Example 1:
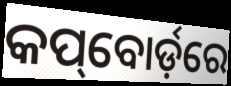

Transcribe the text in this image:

କପ୍‌ବୋର୍ଡ଼ରେ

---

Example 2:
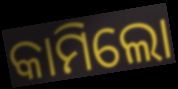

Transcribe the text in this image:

କାମିଲୋ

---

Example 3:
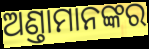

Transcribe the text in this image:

ଅଣ୍ତାମାନଙ୍କର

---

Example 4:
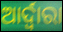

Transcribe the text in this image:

ଆର୍ଦ୍ୱାରା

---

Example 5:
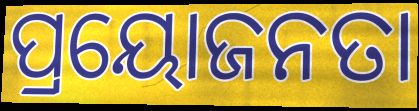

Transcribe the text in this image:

ପ୍ରୟୋଜନତା